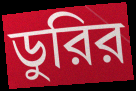
ডুরির